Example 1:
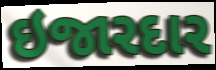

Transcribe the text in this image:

ઇજારદાર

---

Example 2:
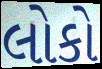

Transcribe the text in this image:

લોકો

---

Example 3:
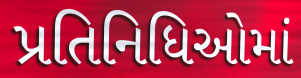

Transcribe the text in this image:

પ્રતિનિધિઓમાં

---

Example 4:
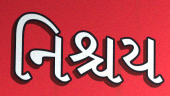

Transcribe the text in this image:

નિશ્ચય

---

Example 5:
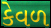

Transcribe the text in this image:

કેવળ